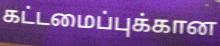
கட்டமைப்புக்கான